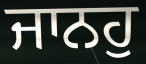
ਜਾਨਹੁ